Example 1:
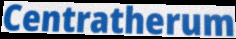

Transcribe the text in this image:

Centratherum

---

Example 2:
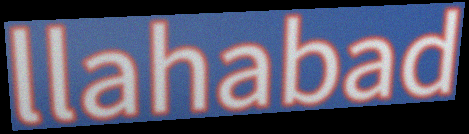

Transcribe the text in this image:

llahabad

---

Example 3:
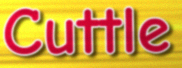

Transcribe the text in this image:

Cuttle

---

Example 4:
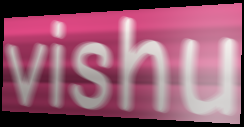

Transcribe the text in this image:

vishu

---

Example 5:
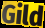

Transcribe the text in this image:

Gild